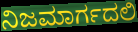
ನಿಜಮಾರ್ಗದಲಿ